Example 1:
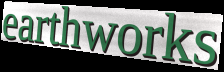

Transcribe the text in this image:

earthworks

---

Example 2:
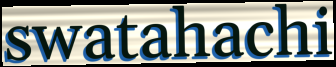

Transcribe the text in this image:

swatahachi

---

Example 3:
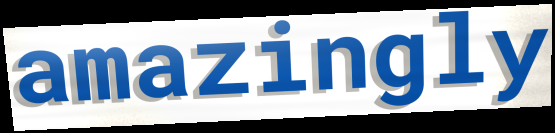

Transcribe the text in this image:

amazingly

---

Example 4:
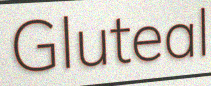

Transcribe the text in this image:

Gluteal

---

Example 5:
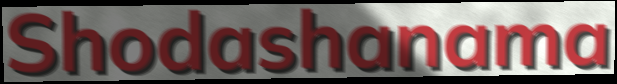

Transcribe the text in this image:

Shodashanama